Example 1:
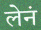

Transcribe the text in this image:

लेनं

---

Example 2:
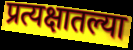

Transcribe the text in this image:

प्रत्यक्षातल्या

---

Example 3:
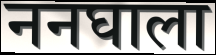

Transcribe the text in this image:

ननघाला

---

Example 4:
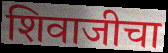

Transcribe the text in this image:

शिवाजीचा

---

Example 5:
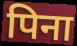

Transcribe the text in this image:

पिना